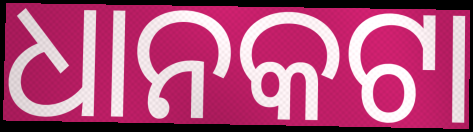
ଧାନକଟା